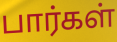
பார்கள்